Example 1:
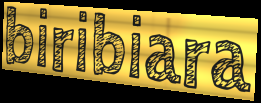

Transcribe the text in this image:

biribiara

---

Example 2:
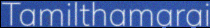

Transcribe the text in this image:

Tamilthamarai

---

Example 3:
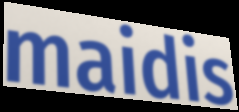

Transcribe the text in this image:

maidis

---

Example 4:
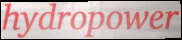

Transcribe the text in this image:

hydropower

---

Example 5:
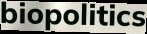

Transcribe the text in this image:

biopolitics